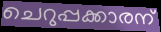
ചെറുപ്പക്കാരന്